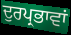
ਦੁਰਪ੍ਰਭਾਵਾਂ